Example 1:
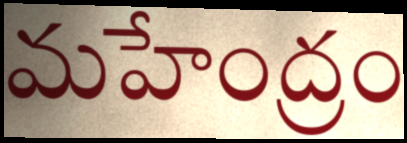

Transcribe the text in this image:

మహేంద్రం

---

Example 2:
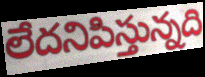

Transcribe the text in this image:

లేదనిపిస్తున్నది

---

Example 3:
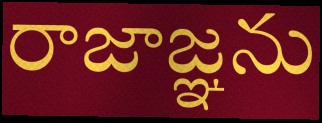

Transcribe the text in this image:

రాజాజ్ఞను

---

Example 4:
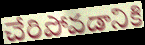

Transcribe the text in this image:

చేరిపోవడానికి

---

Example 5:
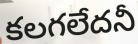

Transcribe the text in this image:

కలగలేదనీ